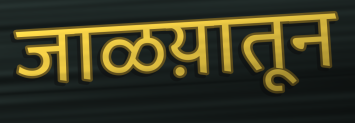
जाळय़ातून